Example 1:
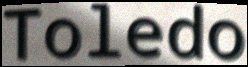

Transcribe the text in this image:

Toledo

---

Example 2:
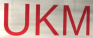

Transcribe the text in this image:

UKM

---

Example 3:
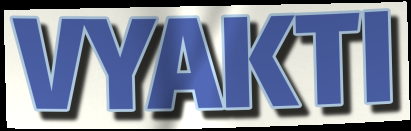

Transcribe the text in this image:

VYAKTI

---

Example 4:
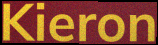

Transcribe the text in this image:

Kieron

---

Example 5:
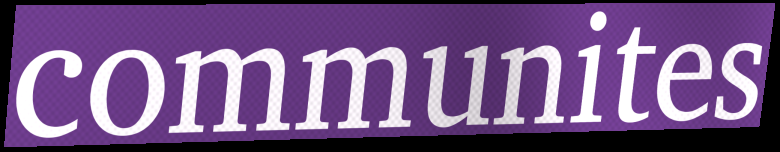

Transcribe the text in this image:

communites